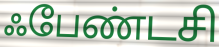
ஃபேண்டசி